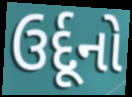
ઉર્દૂનો